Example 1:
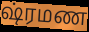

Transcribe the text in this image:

ஷ்ரமண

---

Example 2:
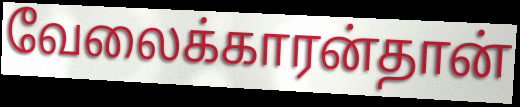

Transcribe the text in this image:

வேலைக்காரன்தான்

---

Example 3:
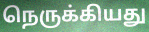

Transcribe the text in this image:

நெருக்கியது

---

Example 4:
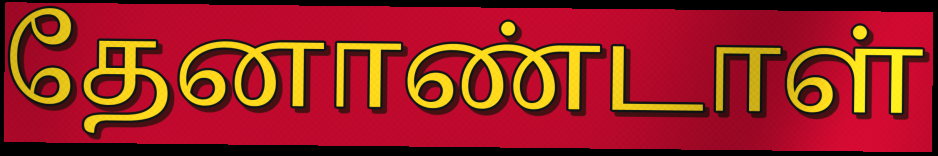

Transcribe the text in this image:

தேனாண்டாள்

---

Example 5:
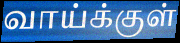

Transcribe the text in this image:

வாய்க்குள்